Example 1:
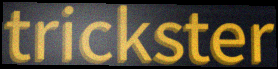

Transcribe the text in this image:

trickster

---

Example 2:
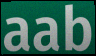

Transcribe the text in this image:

aab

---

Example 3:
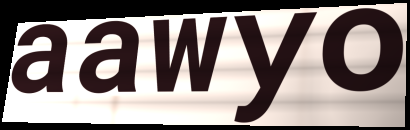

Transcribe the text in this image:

aawyo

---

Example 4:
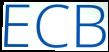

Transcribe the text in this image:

ECB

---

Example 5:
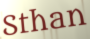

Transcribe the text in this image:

Sthan